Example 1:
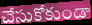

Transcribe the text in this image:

చేసుకోకుండా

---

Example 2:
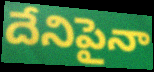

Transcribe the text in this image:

దేనిపైనా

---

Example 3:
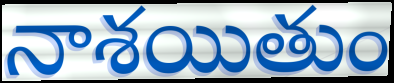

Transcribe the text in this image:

నాశయితుం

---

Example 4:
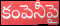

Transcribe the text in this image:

కంపెనీపై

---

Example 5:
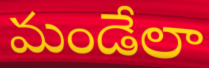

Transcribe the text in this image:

మండేలా